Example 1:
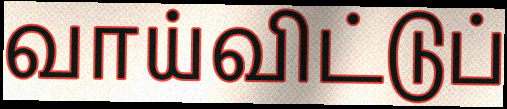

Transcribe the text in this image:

வாய்விட்டுப்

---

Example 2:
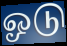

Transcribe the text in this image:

ஓடு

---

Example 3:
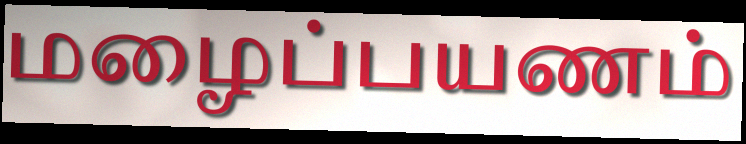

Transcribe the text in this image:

மழைப்பயணம்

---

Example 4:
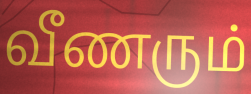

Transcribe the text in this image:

வீணரும்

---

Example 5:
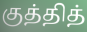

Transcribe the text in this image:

குத்தித்